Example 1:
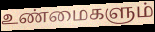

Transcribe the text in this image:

உண்மைகளும்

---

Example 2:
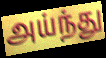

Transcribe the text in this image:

அய்ந்து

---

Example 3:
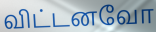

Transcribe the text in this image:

விட்டனவோ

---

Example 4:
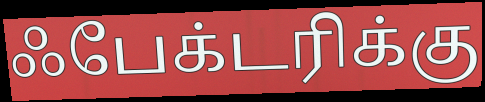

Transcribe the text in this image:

ஃபேக்டரிக்கு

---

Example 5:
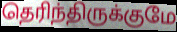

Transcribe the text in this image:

தெரிந்திருக்குமே